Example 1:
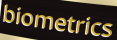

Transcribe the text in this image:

biometrics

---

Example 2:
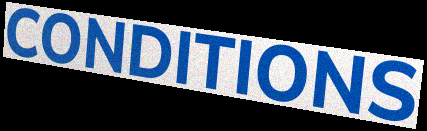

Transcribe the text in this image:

CONDITIONS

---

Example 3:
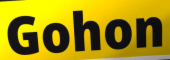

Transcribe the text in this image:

Gohon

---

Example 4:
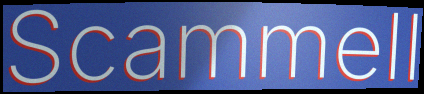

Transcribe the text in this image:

Scammell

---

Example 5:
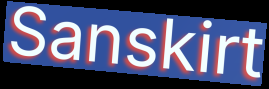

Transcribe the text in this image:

Sanskirt